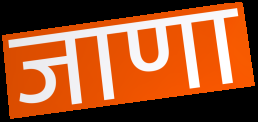
जाणा